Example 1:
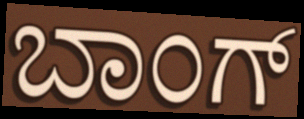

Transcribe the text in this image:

ಬಾಂಗ್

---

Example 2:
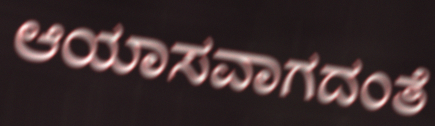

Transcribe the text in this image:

ಆಯಾಸವಾಗದಂತೆ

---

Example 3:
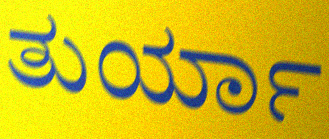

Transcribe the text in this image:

ತುರ್ಯಾ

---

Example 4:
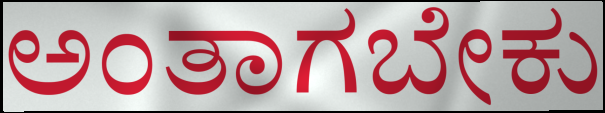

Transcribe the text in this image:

ಅಂತಾಗಬೇಕು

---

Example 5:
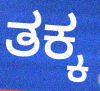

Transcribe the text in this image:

ತಕ್ಕ